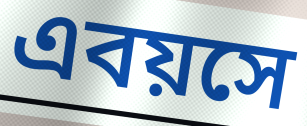
এবয়সে